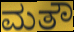
ಮತೌ